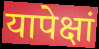
यापेक्षां